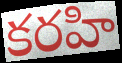
కరహి